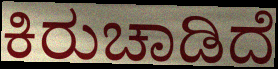
ಕಿರುಚಾಡಿದೆ